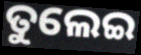
ତୁଲେଇ